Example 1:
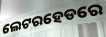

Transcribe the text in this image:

ଲେଟରହେଡରେ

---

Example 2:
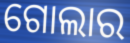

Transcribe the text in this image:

ଗୋଲାର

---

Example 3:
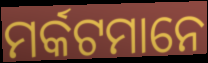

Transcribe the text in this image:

ମର୍କଟମାନେ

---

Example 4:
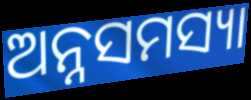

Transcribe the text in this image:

ଅନ୍ନସମସ୍ୟା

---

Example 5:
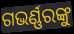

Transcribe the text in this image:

ଗଭର୍ଣ୍ଣରଙ୍କୁ